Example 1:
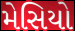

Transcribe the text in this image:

મેસિયો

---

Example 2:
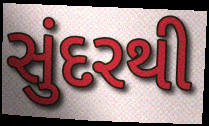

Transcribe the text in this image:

સુંદરથી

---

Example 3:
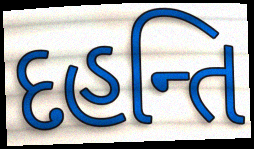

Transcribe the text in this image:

દહન્તિ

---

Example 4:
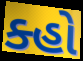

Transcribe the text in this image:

ક્હો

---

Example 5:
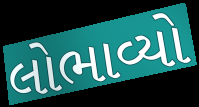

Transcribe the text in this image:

લોભાવ્યો